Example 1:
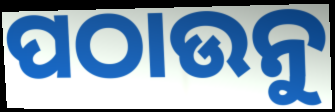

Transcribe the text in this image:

ପଠାଉନୁ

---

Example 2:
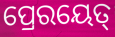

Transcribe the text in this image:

ପ୍ରେରୟେତ୍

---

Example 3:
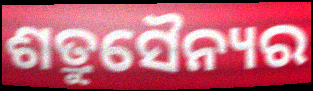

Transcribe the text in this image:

ଶତ୍ରୁସୈନ୍ୟର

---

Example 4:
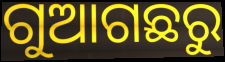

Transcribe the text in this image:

ଗୁଆଗଛରୁ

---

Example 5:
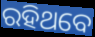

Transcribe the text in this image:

ରହିଥବେ